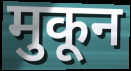
मुकून